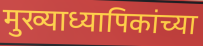
मुख्याध्यापिकांच्या